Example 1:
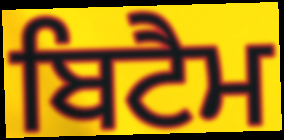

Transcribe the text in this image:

ਬਿਟੈਮ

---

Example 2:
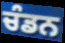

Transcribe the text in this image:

ਚੰਡਨ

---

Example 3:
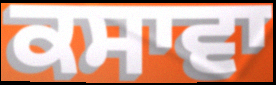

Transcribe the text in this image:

ਕਸਾਵਾ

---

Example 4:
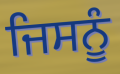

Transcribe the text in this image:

ਜਿਸਨੂੰ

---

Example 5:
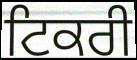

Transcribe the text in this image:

ਟਿਕਰੀ